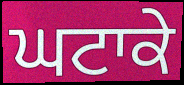
ਘਟਾਕੇ